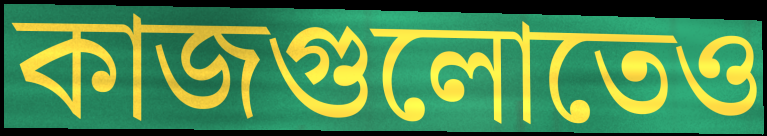
কাজগুলোতেও